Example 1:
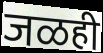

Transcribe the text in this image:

जळही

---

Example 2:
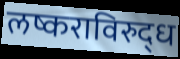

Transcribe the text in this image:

लष्कराविरुद्ध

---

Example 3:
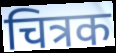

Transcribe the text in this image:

चित्रक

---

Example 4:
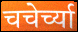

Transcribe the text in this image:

चचेर्च्या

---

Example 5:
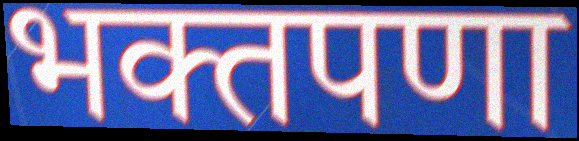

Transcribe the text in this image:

भक्तपणा